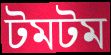
টমটম